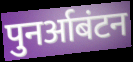
पुनर्आबंटन